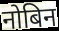
नोबिन